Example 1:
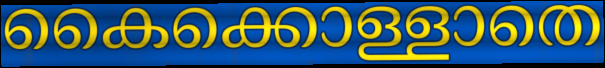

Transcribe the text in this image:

കൈക്കൊള്ളാതെ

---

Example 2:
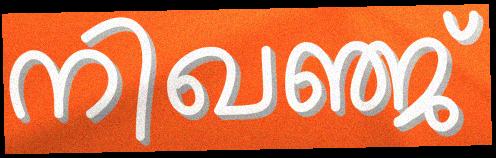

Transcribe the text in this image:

നിഖഞ്ജ്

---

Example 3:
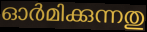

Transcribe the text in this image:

ഓർമിക്കുന്നതു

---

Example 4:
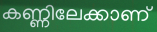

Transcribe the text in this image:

കണ്ണിലേക്കാണ്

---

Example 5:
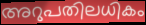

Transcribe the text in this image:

അറുപതിലധികം